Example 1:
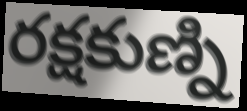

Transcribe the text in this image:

రక్షకుణ్ని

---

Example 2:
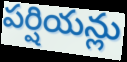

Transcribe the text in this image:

పర్షియన్లు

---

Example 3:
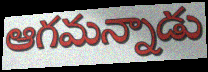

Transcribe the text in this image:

ఆగమన్నాడు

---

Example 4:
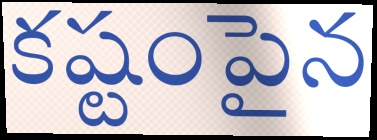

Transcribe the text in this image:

కష్టంపైన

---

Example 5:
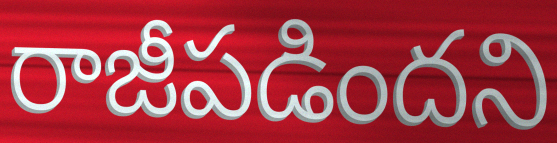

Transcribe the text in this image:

రాజీపడిందని